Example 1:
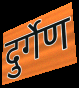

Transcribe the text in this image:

दुर्गेण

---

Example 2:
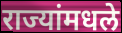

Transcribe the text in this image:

राज्यांमधले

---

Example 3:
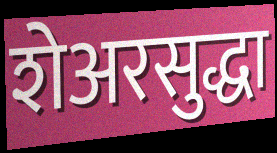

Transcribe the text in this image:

शेअरसुद्धा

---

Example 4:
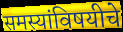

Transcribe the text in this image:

समस्यांविषयीचे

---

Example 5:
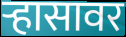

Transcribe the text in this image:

ऱ्हासावर